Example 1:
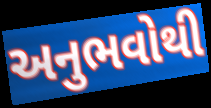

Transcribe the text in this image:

અનુભવોથી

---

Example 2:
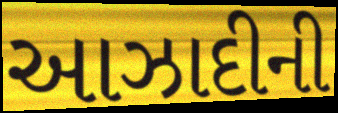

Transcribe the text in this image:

આઝાદીની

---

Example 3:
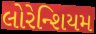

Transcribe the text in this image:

લોરેન્શિયમ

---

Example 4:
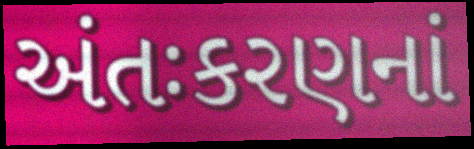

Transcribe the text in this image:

અંતઃકરણનાં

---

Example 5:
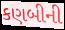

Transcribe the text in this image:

કણબીની